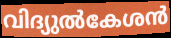
വിദ്യുൽകേശൻ